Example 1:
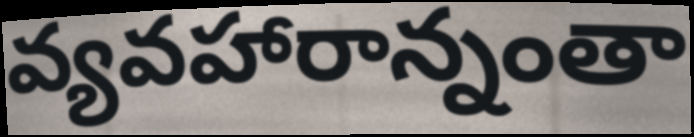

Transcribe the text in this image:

వ్యవహారాన్నంతా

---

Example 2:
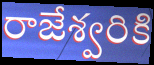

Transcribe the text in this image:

రాజేశ్వరికి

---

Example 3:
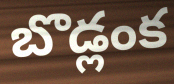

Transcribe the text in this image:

బొడ్లంక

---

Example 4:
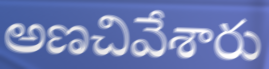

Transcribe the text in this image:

అణచివేశారు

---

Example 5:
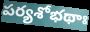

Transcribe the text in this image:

పర్యశోభథాః